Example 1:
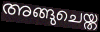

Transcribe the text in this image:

അങ്ങുചെയ്ത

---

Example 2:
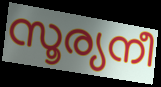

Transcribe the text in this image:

സൂര്യനീ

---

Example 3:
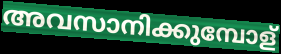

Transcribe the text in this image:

അവസാനിക്കുമ്പോള്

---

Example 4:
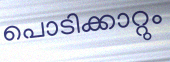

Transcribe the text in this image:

പൊടിക്കാറ്റും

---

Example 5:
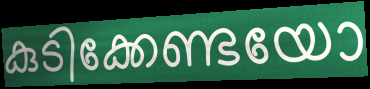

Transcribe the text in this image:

കുടിക്കേണ്ടയോ